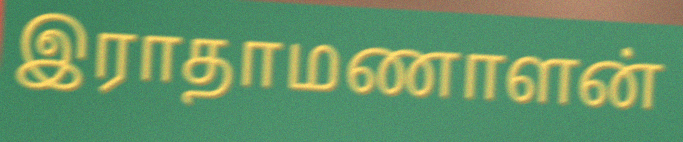
இராதாமணாளன்